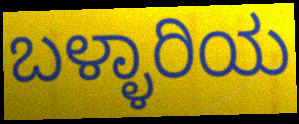
ಬಳ್ಳಾರಿಯ